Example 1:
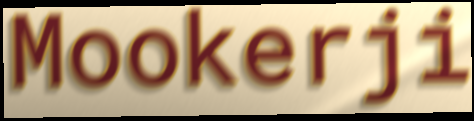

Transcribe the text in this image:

Mookerji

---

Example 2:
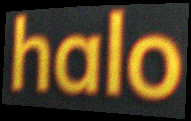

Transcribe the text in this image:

halo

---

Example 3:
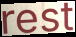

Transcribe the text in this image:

rest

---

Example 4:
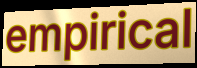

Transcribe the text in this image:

empirical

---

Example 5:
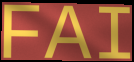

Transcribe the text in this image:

FAI